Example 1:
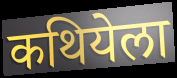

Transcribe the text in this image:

कथियेला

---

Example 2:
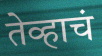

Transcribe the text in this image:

तेव्हाचं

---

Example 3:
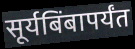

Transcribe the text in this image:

सूर्यबिंबापर्यंत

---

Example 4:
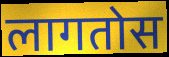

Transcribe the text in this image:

लागतोस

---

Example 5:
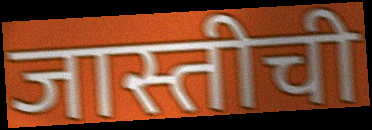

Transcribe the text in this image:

जास्तीची